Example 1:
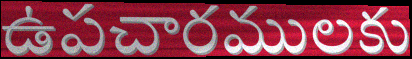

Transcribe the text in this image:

ఉపచారములకు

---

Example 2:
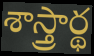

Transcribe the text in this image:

శాస్త్రార్థ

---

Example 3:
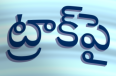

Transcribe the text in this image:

ట్రాక్‌పై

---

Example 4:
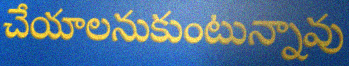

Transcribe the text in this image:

చేయాలనుకుంటున్నావు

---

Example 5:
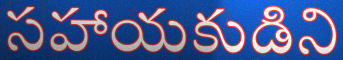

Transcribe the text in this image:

సహాయకుడిని